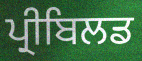
ਪ੍ਰੀਬਿਲਡ